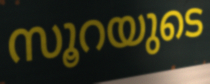
സൂറയുടെ